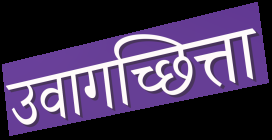
उवागच्छित्ता